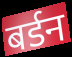
बर्डन